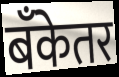
बँकेतर